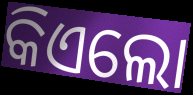
କିଏଲୋ